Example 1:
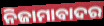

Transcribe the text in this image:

ନିଜାମାବାଦର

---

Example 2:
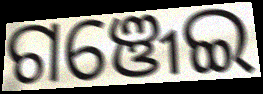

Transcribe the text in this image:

ଗଞ୍ଜେଇ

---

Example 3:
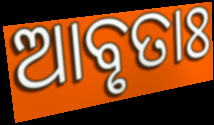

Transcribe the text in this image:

ଆବୃତାଃ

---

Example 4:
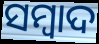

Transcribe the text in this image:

ସମ୍ବାଦ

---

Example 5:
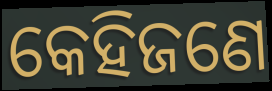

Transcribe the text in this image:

କେହିଜଣେ